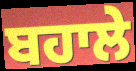
ਬਹਾਲੇ